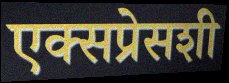
एक्सप्रेसशी